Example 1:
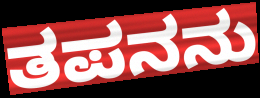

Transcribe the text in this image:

ತಪನನು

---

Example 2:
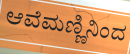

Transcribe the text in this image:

ಆವೆಮಣ್ಣಿನಿಂದ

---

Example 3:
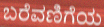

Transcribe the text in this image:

ಬರೆವಣಿಗೆಯ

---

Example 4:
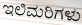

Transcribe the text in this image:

ಇಲಿಮರಿಗಳು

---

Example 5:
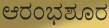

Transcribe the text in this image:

ಆರಂಭಶೂರ